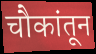
चौकांतून